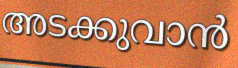
അടക്കുവാൻ